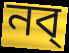
নব্